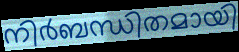
നിർബന്ധിതമായി